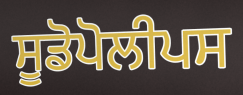
ਸੂਡੋਪੋਲੀਪਸ